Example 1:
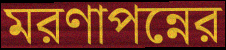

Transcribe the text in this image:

মরণাপন্নের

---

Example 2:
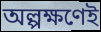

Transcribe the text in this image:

অল্পক্ষণেই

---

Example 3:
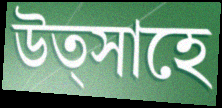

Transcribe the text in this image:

উত্সাহে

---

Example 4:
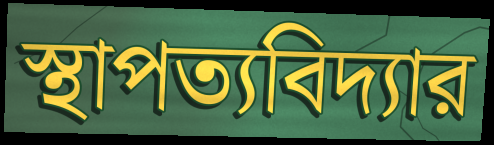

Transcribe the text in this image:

স্থাপত্যবিদ্যার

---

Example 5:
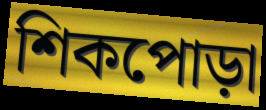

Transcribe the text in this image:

শিকপোড়া